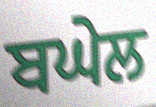
ਬਘੇਲ